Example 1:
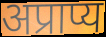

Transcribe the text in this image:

अप्राप्य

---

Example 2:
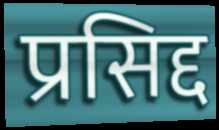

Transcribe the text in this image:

प्रसिद्द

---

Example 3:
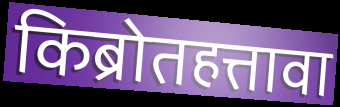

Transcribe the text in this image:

किब्रोतहत्तावा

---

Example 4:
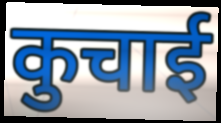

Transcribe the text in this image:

कुचाई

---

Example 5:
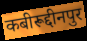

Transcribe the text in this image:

कबीरूद्दीनपुर